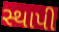
સ્થાપી